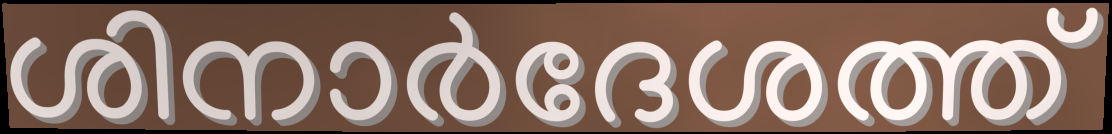
ശിനാർദേശത്ത്